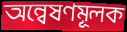
অন্বেষণমূলক